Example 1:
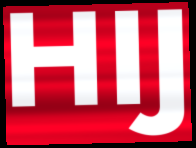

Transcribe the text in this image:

HIJ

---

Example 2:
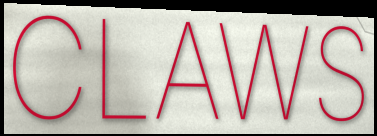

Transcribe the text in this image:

CLAWS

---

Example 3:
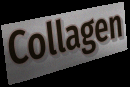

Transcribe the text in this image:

Collagen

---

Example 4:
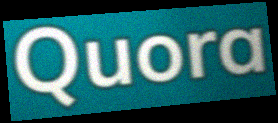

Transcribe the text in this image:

Quora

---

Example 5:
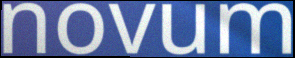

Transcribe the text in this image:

novum